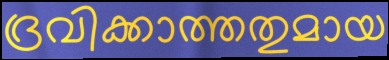
ദ്രവിക്കാത്തതുമായ